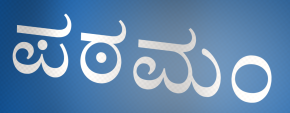
ಪಠಮಂ